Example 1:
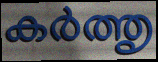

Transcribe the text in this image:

കർത്തൃ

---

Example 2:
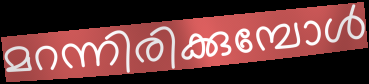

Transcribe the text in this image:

മറന്നിരിക്കുമ്പോൾ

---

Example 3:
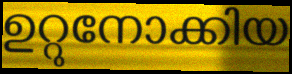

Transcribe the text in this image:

ഉറ്റുനോക്കിയ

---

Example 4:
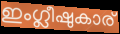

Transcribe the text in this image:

ഇംഗ്ലീഷുകാര്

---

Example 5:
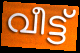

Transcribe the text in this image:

വീട്ട്